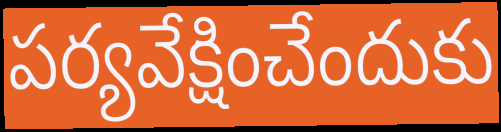
పర్యవేక్షించేందుకు